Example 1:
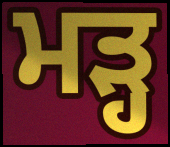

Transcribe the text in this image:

ਮੜ੍ਹ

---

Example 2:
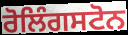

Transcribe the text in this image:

ਰੋਲਿੰਗਸਟੋਨ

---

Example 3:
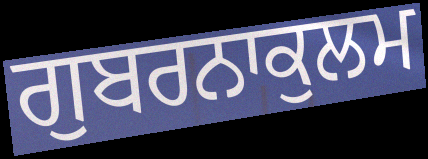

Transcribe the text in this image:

ਗੁਬਰਨਾਕੁਲਮ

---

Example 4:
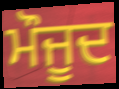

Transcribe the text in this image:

ਮੌਜੂਦ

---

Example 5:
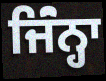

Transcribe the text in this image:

ਜਿੰਂਨ੍ਹਾ